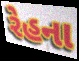
રેહના